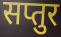
सप्तुर